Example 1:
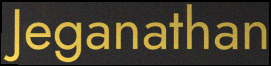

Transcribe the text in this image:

Jeganathan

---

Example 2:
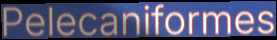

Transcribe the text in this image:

Pelecaniformes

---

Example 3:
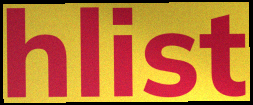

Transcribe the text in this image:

hlist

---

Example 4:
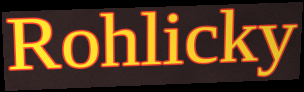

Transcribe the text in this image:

Rohlicky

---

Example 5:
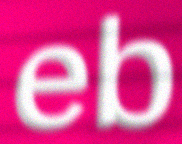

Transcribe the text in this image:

eb